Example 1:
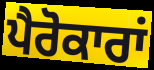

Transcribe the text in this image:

ਪੈਰੋਕਾਰਾਂ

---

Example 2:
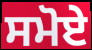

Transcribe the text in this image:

ਸਮੋਏ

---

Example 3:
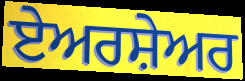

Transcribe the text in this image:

ਏਅਰਸ਼ੇਅਰ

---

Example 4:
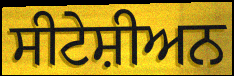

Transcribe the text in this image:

ਸੀਟੇਸ਼ੀਅਨ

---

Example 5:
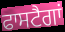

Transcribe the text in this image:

ਫਾਸਟੈਗਾਂ